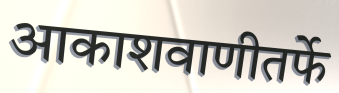
आकाशवाणीतर्फे